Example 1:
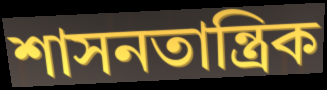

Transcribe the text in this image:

শাসনতান্ত্রিক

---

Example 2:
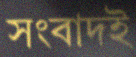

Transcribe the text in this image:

সংবাদই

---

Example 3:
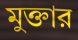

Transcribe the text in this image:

মুক্তার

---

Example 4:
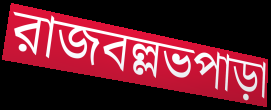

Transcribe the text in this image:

রাজবল্লভপাড়া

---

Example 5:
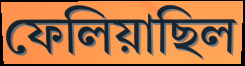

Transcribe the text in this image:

ফেলিয়াছিল